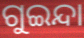
ଗୁଇନ୍ଦା